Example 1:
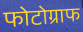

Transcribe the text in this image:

फोटोग्राफ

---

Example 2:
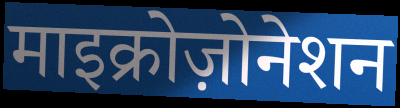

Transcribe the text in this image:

माइक्रोज़ोनेशन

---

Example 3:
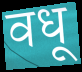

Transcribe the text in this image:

वधू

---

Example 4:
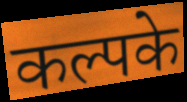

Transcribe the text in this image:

कल्पके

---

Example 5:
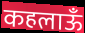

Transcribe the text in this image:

कहलाऊँ